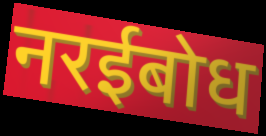
नरईबोध